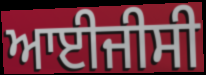
ਆਈਜੀਸੀ